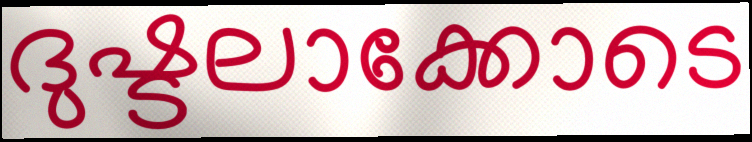
ദുഷ്ടലാക്കോടെ